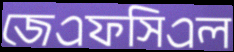
জেএফসিএল